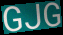
GJG